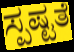
ಸ್ಪಷ್ಟತೆ